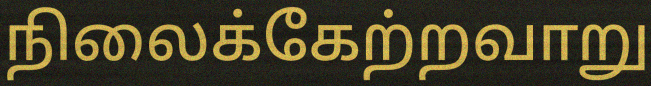
நிலைக்கேற்றவாறு